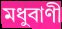
মধুবাণী